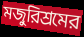
মজুরিশ্রমের